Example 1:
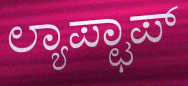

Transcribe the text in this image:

ಲ್ಯಾಪ್ಟಾಪ್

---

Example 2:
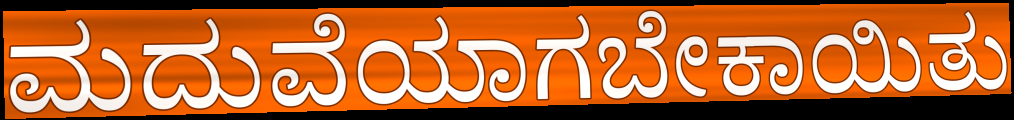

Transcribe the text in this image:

ಮದುವೆಯಾಗಬೇಕಾಯಿತು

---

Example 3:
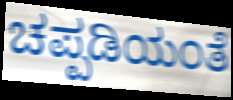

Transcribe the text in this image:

ಚಪ್ಪಡಿಯಂತೆ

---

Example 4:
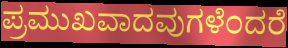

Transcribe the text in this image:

ಪ್ರಮುಖವಾದವುಗಳೆಂದರೆ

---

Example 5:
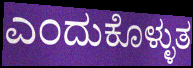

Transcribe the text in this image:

ಎಂದುಕೊಳ್ಳುತ